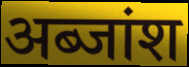
अब्जांश